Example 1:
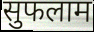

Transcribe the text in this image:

सुफलाम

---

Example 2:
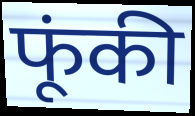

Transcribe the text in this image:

फूंकी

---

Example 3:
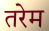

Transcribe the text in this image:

तरेम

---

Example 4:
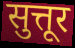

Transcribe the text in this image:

सुत्तूर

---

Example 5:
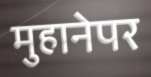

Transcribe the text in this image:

मुहानेपर